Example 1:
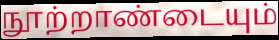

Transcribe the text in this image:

நூற்றாண்டையும்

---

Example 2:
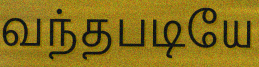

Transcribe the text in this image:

வந்தபடியே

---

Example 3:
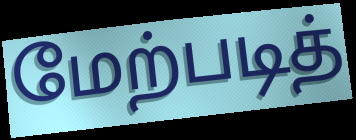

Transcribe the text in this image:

மேற்படித்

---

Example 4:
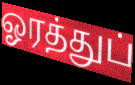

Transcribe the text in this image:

ஓரத்துப்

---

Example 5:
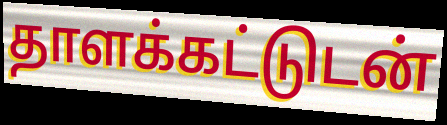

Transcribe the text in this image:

தாளக்கட்டுடன்